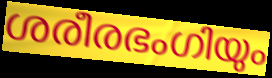
ശരീരഭംഗിയും